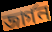
জার্গন